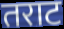
तराट